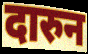
दारुन